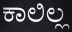
ಕಾಲಿಲ್ಲ